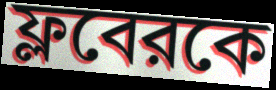
ফ্লবেরকে